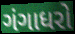
ગંગાધરો